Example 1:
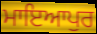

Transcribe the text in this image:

ਮਾਇਆਪੁਰ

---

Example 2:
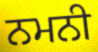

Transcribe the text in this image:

ਨਮਨੀ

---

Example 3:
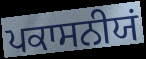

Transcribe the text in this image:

ਪਕਾਸਨੀਯਂ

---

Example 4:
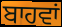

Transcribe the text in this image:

ਬਾਹਵਾਂ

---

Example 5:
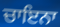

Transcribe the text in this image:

ਚਾਇਨਾ